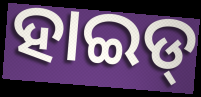
ହାଇଡ୍